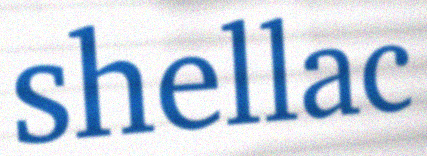
shellac